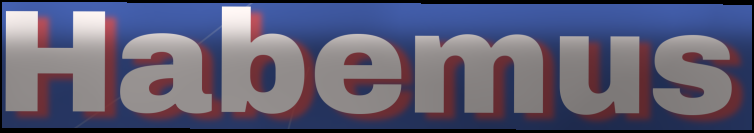
Habemus